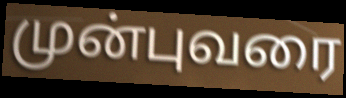
முன்புவரை